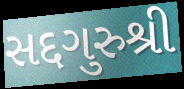
સદ્દગુરુશ્રી